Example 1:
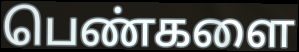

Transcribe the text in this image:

பெண்களை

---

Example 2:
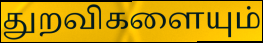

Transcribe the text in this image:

துறவிகளையும்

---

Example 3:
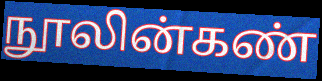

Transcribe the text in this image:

நூலின்கண்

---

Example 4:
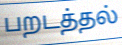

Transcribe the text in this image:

பறடத்தல்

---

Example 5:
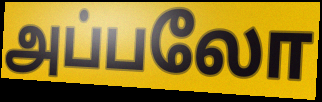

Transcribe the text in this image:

அப்பலோ